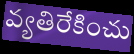
వ్యతిరేకించు